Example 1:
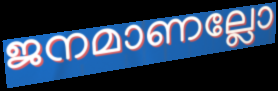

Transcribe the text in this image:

ജനമാണല്ലോ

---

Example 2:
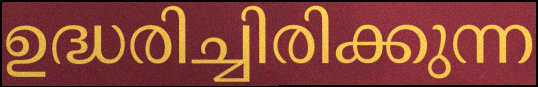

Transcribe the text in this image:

ഉദ്ധരിച്ചിരിക്കുന്ന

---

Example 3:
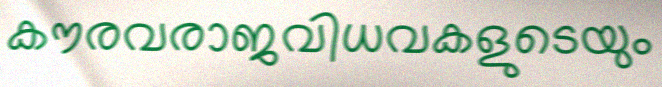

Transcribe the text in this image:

കൗരവരാജവിധവകളുടെയും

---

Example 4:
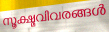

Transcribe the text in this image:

സൂക്ഷ്മവിവരങ്ങൾ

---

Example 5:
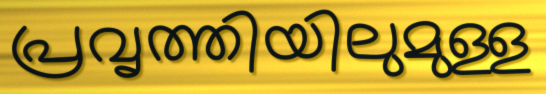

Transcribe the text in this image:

പ്രവൃത്തിയിലുമുള്ള